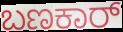
ಬಣಕಾರ್